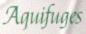
Aquifuges